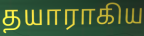
தயாராகிய